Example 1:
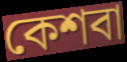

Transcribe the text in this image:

কেশবা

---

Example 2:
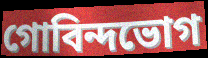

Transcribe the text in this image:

গোবিন্দভোগ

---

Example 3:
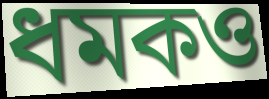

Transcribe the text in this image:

ধমকও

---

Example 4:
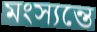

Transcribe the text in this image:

মংস্যন্তে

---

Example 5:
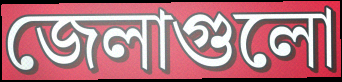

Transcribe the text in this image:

জেলাগুলো